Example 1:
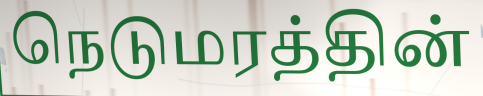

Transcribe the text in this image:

நெடுமரத்தின்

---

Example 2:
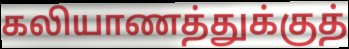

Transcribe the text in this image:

கலியாணத்துக்குத்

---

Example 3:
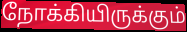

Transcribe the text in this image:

நோக்கியிருக்கும்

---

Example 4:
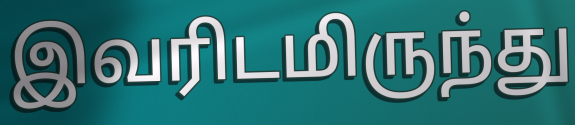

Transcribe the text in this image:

இவரிடமிருந்து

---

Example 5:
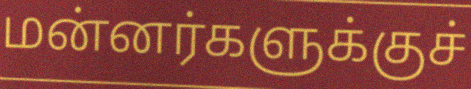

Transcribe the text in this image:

மன்னர்களுக்குச்